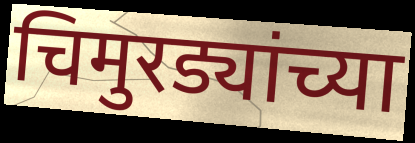
चिमुरड्यांच्या